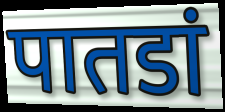
पातडां